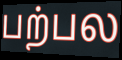
பற்பல